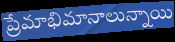
ప్రేమాభిమానాలున్నాయి